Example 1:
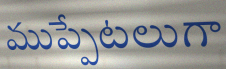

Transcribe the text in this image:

ముప్పేటలుగా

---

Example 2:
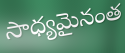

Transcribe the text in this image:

సాధ్యమైనంత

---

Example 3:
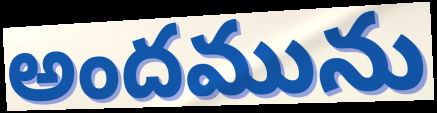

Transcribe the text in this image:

అందమును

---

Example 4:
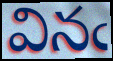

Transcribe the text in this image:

వినఁ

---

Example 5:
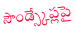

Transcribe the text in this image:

సౌండ్స్కేప్లపై